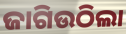
ଜାଗିଉଠିଲା